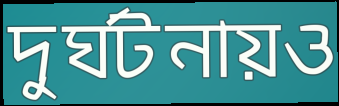
দুর্ঘটনায়ও